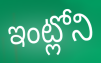
ఇంట్లోని